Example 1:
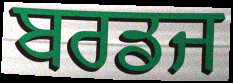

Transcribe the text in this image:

ਬਰਡਜ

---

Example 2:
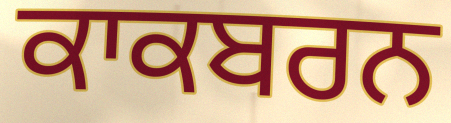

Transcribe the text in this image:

ਕਾਕਬਰਨ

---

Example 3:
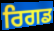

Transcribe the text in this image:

ਰਿਗਡ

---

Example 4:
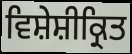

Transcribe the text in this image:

ਵਿਸ਼ੇਸ਼ੀਕ੍ਰਿਤ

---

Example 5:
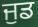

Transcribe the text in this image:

ਜੁਡ